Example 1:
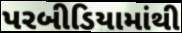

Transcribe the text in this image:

પરબીડિયામાંથી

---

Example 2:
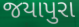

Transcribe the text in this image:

જયાપુરા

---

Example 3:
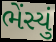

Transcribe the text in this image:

ભેંસ્યું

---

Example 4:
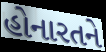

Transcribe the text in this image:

હોનારતને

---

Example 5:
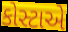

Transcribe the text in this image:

કોસ્ટાએ